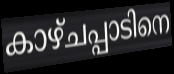
കാഴ്ചപ്പാടിനെ